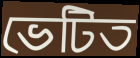
ভেটিত